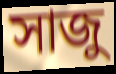
সাজু